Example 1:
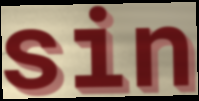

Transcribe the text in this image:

sin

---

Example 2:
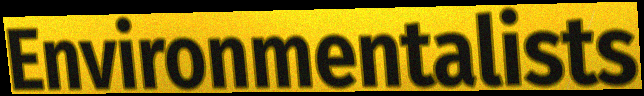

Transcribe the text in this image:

Environmentalists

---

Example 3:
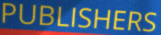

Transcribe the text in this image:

PUBLISHERS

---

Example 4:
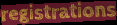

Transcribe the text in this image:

registrations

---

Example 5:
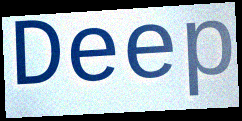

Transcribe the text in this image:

Deep